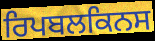
ਰਿਪਬਲਕਿਨਸ